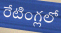
రేటింగ్లలో